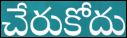
చేరుకోదు